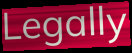
Legally